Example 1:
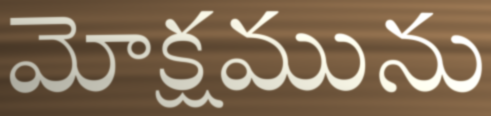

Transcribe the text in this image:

మోక్షమును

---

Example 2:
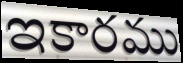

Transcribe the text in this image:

ఇకారము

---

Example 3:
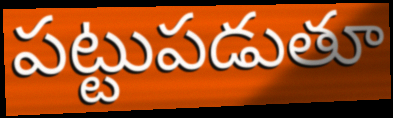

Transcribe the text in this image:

పట్టుపడుతూ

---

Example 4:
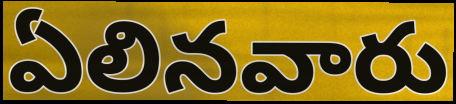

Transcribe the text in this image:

ఏలినవారు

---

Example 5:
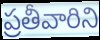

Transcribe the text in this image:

ప్రతీవారిని